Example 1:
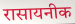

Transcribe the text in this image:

रासायनीक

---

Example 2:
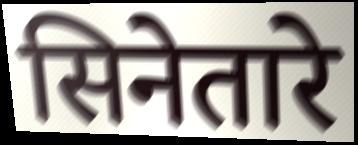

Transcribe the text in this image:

सिनेतारे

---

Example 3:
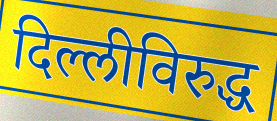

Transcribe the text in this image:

दिल्लीविरुद्ध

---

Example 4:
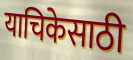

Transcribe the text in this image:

याचिकेसाठी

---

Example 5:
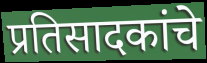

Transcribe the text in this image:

प्रतिसादकांचे